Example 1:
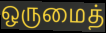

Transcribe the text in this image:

ஒருமைத்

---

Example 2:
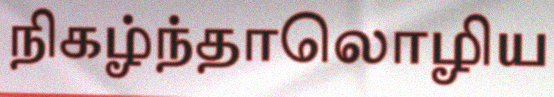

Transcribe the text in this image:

நிகழ்ந்தாலொழிய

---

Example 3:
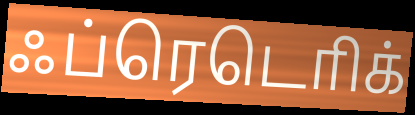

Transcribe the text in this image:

ஃப்ரெடெரிக்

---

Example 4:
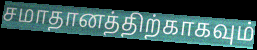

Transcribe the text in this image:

சமாதானத்திற்காகவும்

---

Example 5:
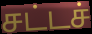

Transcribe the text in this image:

சட்டச்